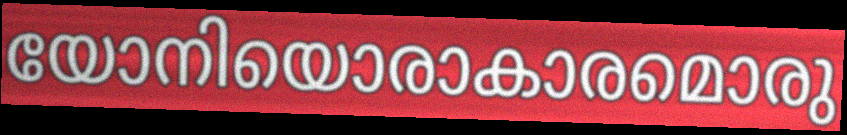
യോനിയൊരാകാരമൊരു